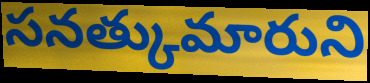
సనత్కుమారుని